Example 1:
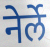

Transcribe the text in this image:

नेर्ले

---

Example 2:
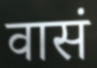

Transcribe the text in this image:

वासं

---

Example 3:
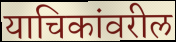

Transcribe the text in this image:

याचिकांवरील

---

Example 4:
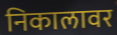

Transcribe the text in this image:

निकालावर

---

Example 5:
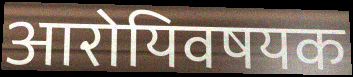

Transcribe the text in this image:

आरोयिवषयक